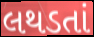
લથડતાં